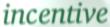
incentive